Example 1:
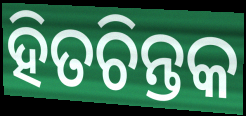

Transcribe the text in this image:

ହିତଚିନ୍ତକ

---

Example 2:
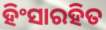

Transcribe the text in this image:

ହିଂସାରହିତ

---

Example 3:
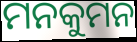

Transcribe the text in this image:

ମନକୁମନ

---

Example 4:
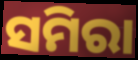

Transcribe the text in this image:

ସମିରା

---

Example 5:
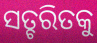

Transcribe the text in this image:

ସତ୍ଚରିତକୁ